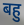
बहु